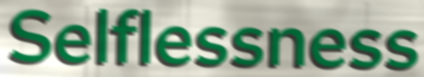
Selflessness